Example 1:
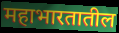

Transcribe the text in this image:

महाभारतातील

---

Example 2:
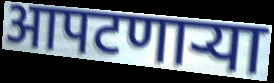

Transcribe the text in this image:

आपटणाऱ्या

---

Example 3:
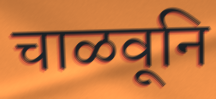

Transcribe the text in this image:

चाळवूनि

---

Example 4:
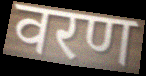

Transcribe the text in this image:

वरण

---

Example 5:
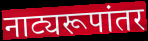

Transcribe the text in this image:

नाट्यरूपांतर